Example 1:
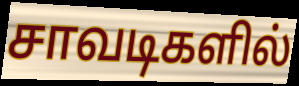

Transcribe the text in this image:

சாவடிகளில்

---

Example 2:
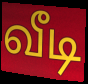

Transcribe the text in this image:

வீடி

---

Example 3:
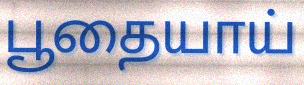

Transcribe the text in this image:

பூதையாய்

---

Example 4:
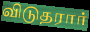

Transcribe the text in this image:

விடுதரார்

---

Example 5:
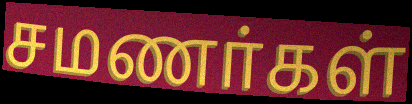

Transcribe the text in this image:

சமணர்கள்